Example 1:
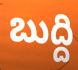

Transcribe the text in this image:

బుద్ది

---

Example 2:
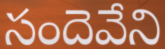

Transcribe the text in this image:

సందెవేని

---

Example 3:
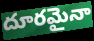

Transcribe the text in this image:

దూరమైనా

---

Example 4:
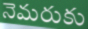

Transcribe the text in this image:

నెమరుకు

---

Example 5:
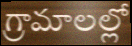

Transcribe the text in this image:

గ్రామాలల్లో